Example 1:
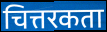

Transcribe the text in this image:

चित्तरकता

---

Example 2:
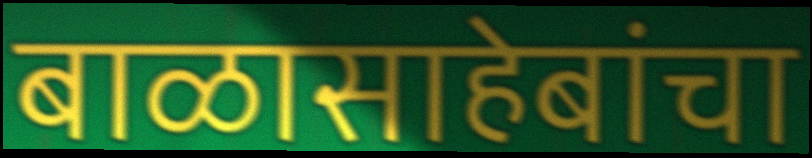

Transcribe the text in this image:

बाळासाहेबांचा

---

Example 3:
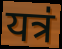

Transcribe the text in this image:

यत्र॑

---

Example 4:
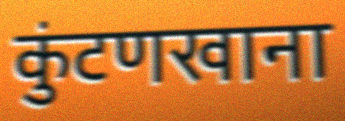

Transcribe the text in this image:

कुंटणखाना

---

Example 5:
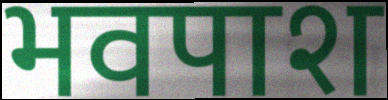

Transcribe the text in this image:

भवपाश